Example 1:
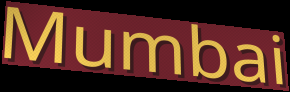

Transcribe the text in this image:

Mumbai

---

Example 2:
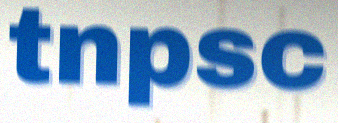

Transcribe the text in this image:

tnpsc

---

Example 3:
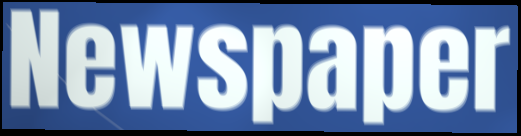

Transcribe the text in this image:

Newspaper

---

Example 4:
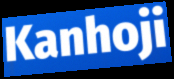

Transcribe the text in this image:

Kanhoji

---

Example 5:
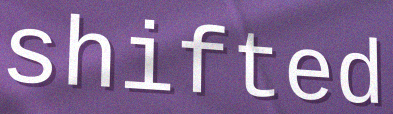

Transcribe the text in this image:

shifted